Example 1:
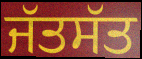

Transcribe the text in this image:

ਜੱਤਸੱਤ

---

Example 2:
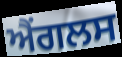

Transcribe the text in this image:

ਐਂਗਲਸ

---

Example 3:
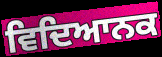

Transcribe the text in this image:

ਵਿਦਿਆਨਕ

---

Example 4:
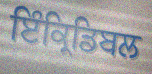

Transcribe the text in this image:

ਇੰਕ੍ਰਿਡਿਬਲ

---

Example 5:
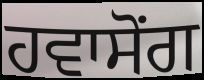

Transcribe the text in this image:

ਹਵਾਸੋਂਗ